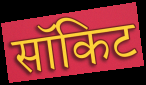
सॉकिट